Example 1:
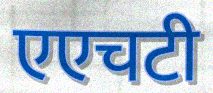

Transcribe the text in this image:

एएचटी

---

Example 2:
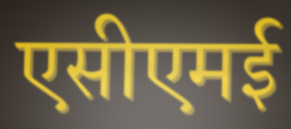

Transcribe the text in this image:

एसीएमई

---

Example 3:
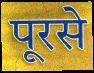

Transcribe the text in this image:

पूरसे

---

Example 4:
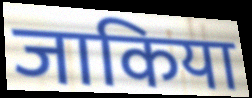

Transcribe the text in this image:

जाकिया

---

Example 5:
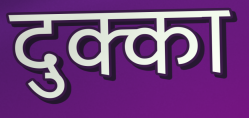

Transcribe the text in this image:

दुक्का